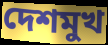
দেশমুখ